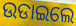
ଉଡାଇଲେ